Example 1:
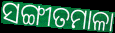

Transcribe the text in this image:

ସଙ୍ଗୀତମାଳା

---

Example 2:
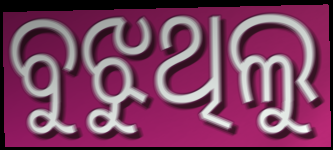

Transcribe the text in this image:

ବୁଝୁଥିଲୁ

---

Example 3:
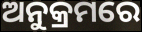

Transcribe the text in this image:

ଅନୁକ୍ରମରେ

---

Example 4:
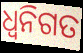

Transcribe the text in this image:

ଧ୍ୱନିଗତ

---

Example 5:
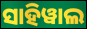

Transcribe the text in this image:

ସାହିୱାଲ